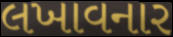
લખાવનાર